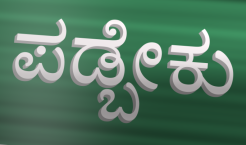
ಪಡ್ಬೇಕು